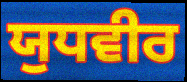
ਯੁਧਵੀਰ